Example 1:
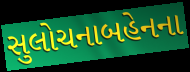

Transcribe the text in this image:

સુલોચનાબહેનના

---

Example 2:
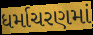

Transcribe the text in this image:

ધર્માચરણમાં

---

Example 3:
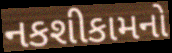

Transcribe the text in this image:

નકશીકામનો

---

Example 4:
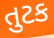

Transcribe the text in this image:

તુટક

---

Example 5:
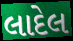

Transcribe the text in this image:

લાદેલ